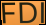
FDI